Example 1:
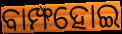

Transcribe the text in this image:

ବାମ୍ଫହୋଇ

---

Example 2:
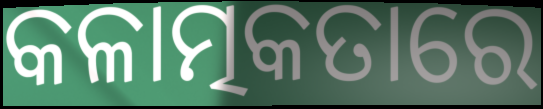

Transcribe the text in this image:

କଳାତ୍ମକତାରେ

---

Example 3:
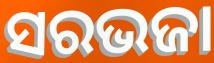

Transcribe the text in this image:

ସରଭଜା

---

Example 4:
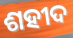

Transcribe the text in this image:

ଶହୀଦ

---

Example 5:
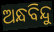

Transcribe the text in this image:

ଅନ୍ଧବିନ୍ଦୁ